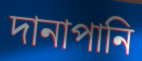
দানাপানি